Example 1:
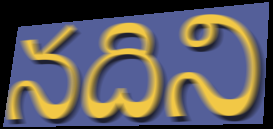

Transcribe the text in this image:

నదిని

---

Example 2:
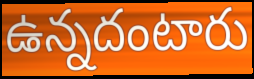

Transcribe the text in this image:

ఉన్నదంటారు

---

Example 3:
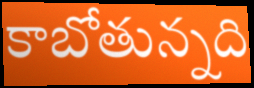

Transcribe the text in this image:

కాబోతున్నది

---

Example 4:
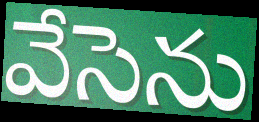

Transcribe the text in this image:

వేసెను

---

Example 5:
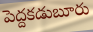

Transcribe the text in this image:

పెద్దకడుబూరు